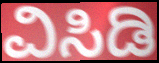
ವಿಸಿಡಿ